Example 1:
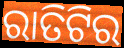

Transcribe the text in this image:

ରାତିଟିର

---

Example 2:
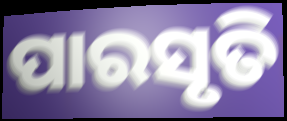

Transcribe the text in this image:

ପାରସୃତି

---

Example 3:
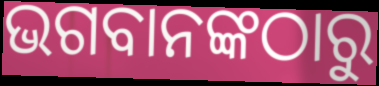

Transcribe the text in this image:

ଭଗବାନଙ୍କଠାରୁ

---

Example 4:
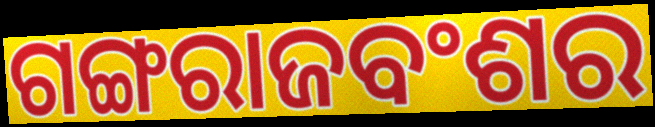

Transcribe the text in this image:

ଗଙ୍ଗରାଜବଂଶର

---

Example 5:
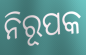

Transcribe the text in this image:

ନିରୂପକ